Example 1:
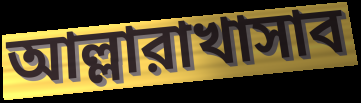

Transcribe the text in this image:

আল্লারাখাসাব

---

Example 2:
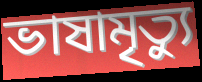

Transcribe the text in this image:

ভাষামৃত্যু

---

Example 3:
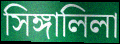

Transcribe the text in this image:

সিঙ্গালিলা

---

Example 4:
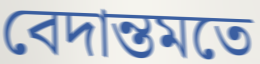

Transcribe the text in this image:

বেদান্তমতে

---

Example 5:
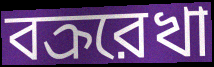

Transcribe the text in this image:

বক্ররেখা